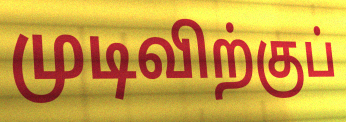
முடிவிற்குப்